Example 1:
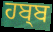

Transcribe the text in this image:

ਹਬ੍ਬ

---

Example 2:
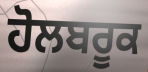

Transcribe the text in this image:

ਹੋਲਬਰੂਕ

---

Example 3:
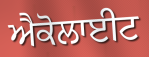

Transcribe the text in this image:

ਐਕੋਲਾਈਟ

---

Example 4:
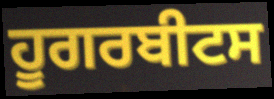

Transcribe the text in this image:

ਹੂਗਰਬੀਟਸ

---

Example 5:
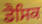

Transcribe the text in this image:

ਡੈਸਿਕ